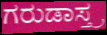
ಗರುಡಾಸ್ತ್ರ